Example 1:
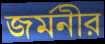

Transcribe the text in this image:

জর্মনীর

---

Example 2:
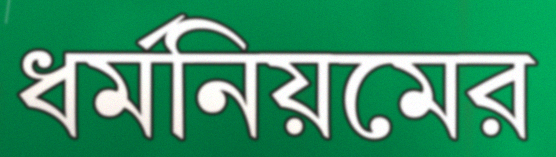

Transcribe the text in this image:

ধর্মনিয়মের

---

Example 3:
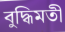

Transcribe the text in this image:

বুদ্ধিমতী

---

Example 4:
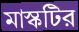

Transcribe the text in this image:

মাস্কটির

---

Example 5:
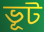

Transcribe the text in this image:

ভূট